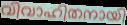
വിവാഹിതനായി